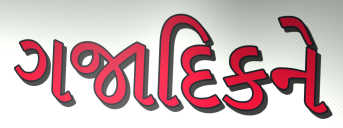
ગજાદિકને